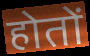
होतों